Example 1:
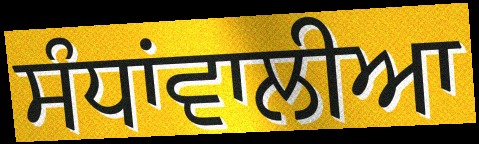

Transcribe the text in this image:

ਸੰਧਾਂਵਾਲੀਆ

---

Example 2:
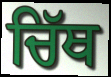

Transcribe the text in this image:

ਚਿੱਥ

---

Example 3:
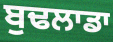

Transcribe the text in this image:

ਬੁਢਲਾਡਾ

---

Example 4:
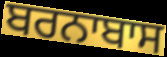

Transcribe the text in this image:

ਬਰਨਾਬਾਸ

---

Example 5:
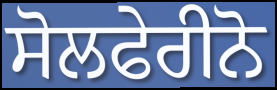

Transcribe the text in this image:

ਸੋਲਫੇਰੀਨੋ